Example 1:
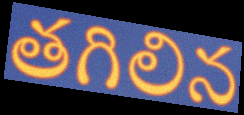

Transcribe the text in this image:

తగిలిన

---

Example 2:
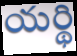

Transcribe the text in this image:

యర్థి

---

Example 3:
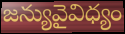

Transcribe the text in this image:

జన్యువైవిధ్యం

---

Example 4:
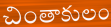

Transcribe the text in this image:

చింతాకులం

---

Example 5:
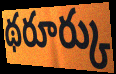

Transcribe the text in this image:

థరూర్కు